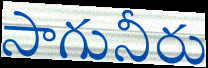
సాగునీరు